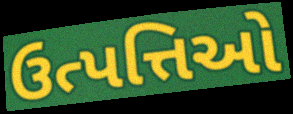
ઉત્પત્તિઓ